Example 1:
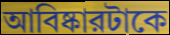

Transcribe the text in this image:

আবিষ্কারটাকে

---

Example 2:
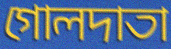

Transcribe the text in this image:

গোলদাতা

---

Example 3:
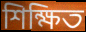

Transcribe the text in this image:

শিক্ষিত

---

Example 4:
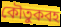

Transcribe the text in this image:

কৌতুকবহ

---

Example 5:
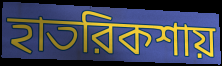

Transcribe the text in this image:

হাতরিকশায়